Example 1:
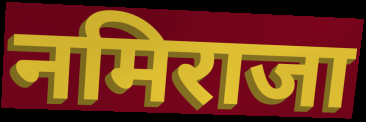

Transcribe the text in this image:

नमिराजा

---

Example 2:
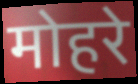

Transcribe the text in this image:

मोहरे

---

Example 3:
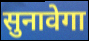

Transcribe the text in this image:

सुनावेगा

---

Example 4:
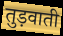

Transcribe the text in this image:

तुड़वाती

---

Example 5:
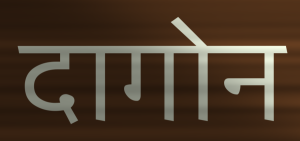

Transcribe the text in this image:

दागोन